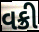
વક્રી